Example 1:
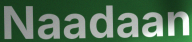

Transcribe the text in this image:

Naadaan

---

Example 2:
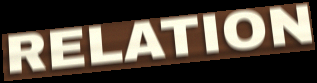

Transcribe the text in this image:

RELATION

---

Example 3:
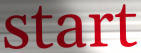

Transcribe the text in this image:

start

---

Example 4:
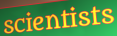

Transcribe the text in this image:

scientists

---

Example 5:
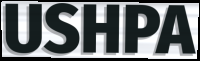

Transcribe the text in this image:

USHPA